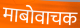
माबोवाचक